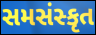
સમસંસ્કૃત